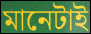
মানেটাই